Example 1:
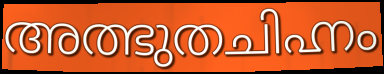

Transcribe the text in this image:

അത്ഭുതചിഹ്നം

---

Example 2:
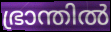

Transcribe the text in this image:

ഭ്രാന്തിൽ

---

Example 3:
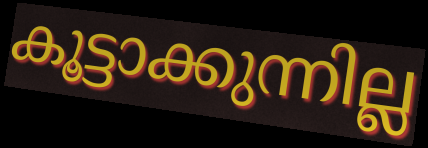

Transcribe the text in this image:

കൂട്ടാക്കുന്നില്ല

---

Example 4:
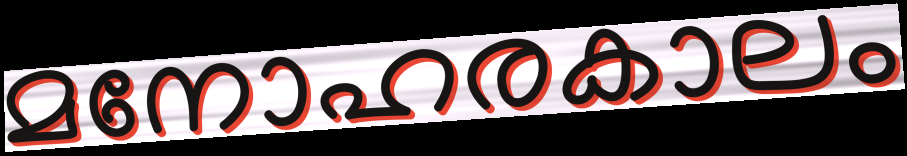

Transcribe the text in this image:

മനോഹരകാലം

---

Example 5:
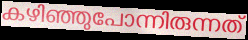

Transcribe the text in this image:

കഴിഞ്ഞുപോന്നിരുന്നത്